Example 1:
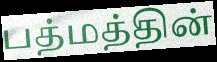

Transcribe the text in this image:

பத்மத்தின்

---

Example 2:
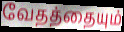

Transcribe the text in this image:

வேதத்தையும்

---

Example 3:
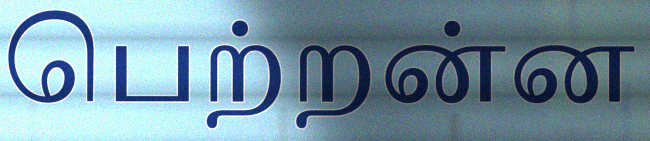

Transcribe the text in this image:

பெற்றன்ன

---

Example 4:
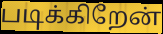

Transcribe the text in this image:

படிக்கிறேன்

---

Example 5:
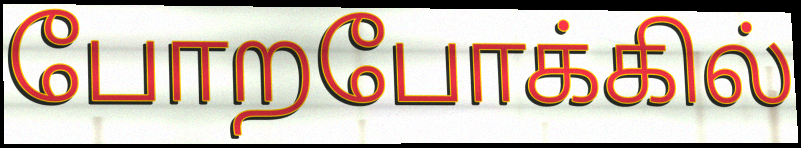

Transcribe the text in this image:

போறபோக்கில்